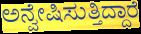
ಅನ್ವೇಷಿಸುತ್ತಿದ್ದಾರೆ